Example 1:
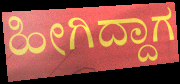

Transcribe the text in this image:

ಹೀಗಿದ್ದಾಗ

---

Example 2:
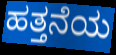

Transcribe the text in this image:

ಹತ್ತನೆಯ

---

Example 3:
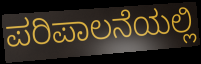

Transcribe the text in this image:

ಪರಿಪಾಲನೆಯಲ್ಲಿ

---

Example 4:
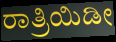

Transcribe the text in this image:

ರಾತ್ರಿಯಿಡೀ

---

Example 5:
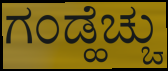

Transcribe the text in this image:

ಗಂಡ್ಹೆಚ್ಚು